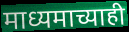
माध्यमाच्याही